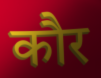
कौर